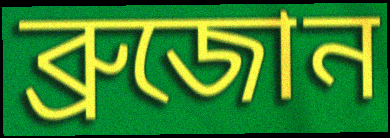
ব্রুজোন